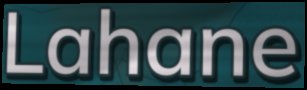
Lahane